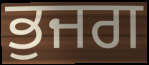
ਭੁਜਗ